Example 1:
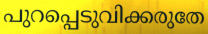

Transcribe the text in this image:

പുറപ്പെടുവിക്കരുതേ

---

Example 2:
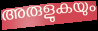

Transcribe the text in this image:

അരുളുകയും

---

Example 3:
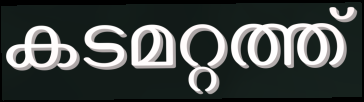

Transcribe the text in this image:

കടമറ്റത്ത്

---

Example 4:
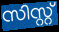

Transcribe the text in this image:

സിസ്റ്റ്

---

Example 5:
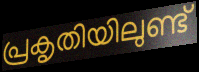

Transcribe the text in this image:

പ്രകൃതിയിലുണ്ട്